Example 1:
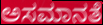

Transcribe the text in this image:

ಅಸಮಾನತೆ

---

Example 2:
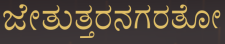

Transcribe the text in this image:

ಜೇತುತ್ತರನಗರತೋ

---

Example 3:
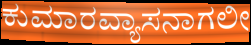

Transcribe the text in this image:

ಕುಮಾರವ್ಯಾಸನಾಗಲೀ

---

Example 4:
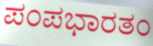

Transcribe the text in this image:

ಪಂಪಭಾರತಂ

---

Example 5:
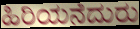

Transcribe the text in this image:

ಹಿರಿಯನೆದುರು